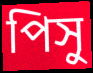
পিসু